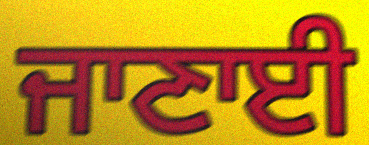
ਜਾਣਾਈ